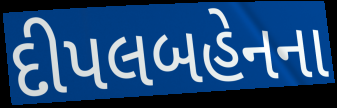
દીપલબહેનના